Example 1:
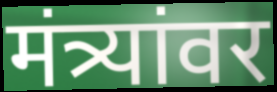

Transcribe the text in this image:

मंत्र्यांवर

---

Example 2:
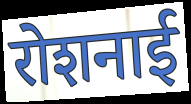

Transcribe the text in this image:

रोशनाई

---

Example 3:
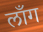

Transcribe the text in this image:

लाँग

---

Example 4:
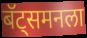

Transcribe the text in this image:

बॅट्समनला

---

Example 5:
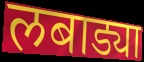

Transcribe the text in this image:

लबाड्या